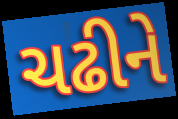
ચઢીને